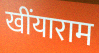
खींयाराम